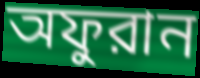
অফুরান